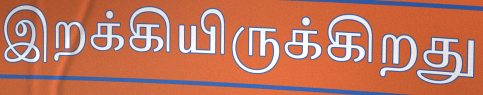
இறக்கியிருக்கிறது